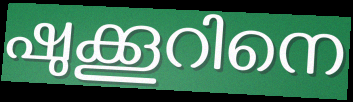
ഷുക്കൂറിനെ